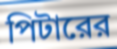
পিটারের